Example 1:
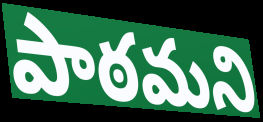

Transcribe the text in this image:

పాఠమని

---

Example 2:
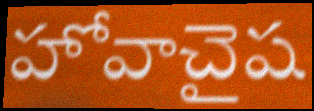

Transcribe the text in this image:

హోవాచైష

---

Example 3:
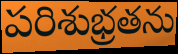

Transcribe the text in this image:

పరిశుభ్రతను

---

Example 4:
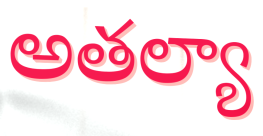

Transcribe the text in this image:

అతల్యా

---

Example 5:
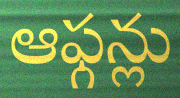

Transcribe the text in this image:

ఆఫ్గన్లు